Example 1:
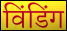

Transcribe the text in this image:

विंडिंग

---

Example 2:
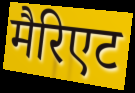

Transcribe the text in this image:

मैरिएट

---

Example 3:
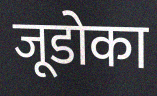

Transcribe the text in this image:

जूडोका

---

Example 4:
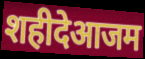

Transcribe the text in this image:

शहीदेआजम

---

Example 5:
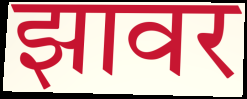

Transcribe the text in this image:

झावर